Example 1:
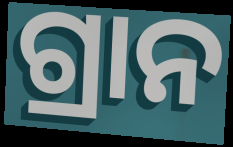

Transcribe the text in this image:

ଗ୍ରାନ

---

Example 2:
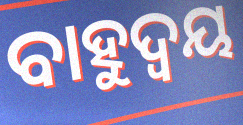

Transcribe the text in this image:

ବାହୁଦ୍ୱୟ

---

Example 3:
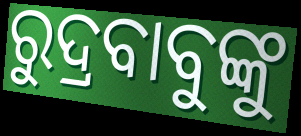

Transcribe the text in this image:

ରୁଦ୍ରବାବୁଙ୍କୁ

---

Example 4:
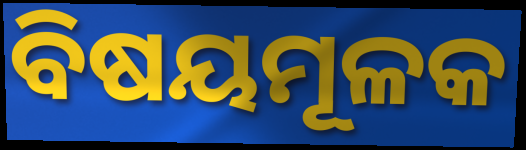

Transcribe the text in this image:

ବିଷୟମୂଳକ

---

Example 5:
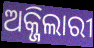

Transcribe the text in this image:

ଅକ୍ଜିଲାରୀ